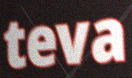
teva